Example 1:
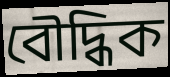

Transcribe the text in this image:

বৌদ্ধিক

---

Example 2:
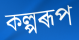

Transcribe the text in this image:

কল্পৰূপ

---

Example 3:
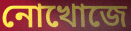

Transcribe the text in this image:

নোখোজে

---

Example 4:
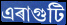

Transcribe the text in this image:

এৰাগুটি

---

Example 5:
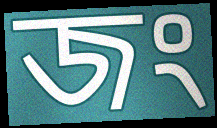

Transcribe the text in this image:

জং